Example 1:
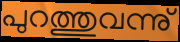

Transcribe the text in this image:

പുറത്തുവന്നു്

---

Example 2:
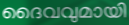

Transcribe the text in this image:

ദൈവവുമായി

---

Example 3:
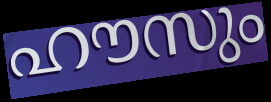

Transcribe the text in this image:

ഹൗസും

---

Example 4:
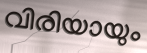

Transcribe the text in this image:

വിരിയായും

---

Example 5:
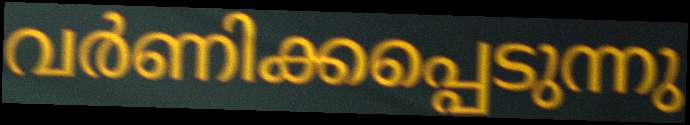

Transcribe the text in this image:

വർണിക്കപ്പെടുന്നു